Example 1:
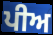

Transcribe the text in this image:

ਪੀਅ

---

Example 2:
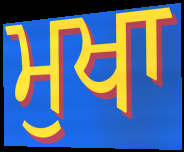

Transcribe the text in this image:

ਮੁਖਾ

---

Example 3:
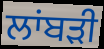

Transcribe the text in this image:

ਲਾਂਬੜੀ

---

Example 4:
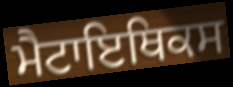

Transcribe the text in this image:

ਮੈਟਾਇਥਿਕਸ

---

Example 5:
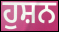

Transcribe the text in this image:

ਹੁਸ਼ਨ